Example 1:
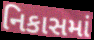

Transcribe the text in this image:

નિકાસમાં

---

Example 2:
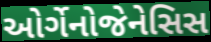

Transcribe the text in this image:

ઓર્ગેનોજેનેસિસ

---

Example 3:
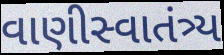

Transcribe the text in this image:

વાણીસ્વાતંત્ર્ય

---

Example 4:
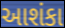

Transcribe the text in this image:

આશંકા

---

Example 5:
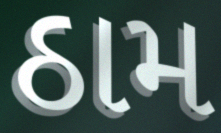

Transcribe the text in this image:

ઠામ